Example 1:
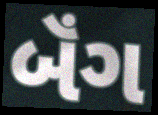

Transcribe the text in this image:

બૅંગ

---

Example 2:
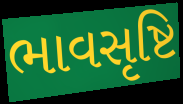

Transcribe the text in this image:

ભાવસૃષ્ટિ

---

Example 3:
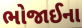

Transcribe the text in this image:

ભોજાઈના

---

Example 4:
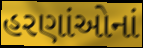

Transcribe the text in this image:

હરણાંઓનાં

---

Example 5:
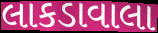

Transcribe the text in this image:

લાકડાવાલા